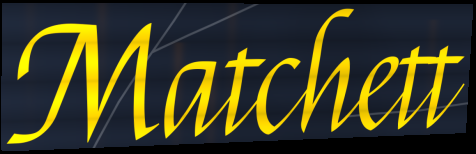
Matchett